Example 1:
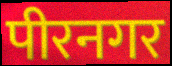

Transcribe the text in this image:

पीरनगर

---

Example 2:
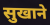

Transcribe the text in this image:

सुखाने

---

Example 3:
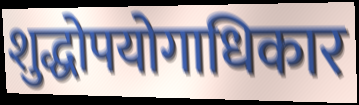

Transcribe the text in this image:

शुद्धोपयोगाधिकार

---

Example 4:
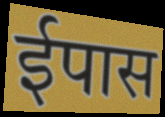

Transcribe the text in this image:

ईपास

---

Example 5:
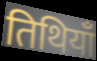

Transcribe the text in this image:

तिथियाँ